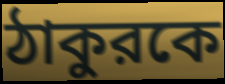
ঠাকুরকে